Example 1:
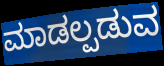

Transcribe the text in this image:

ಮಾಡಲ್ಪಡುವ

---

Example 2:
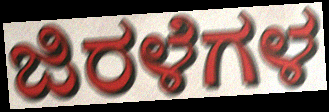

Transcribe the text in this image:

ಜಿರಳೆಗಳ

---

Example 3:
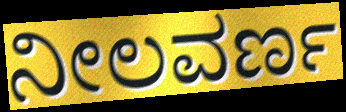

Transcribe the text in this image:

ನೀಲವರ್ಣ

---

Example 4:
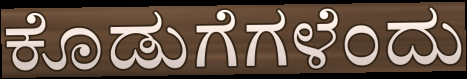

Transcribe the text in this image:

ಕೊಡುಗೆಗಳೆಂದು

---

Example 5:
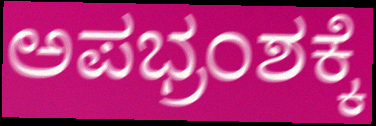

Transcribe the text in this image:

ಅಪಭ್ರಂಶಕ್ಕೆ